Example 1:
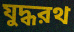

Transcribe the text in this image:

যুদ্ধরথ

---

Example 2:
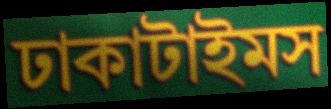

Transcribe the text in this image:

ঢাকাটাইমস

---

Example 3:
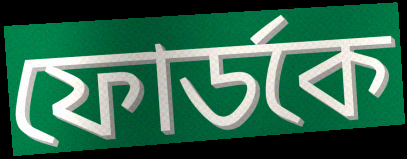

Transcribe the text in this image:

ফোর্ডকে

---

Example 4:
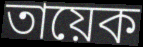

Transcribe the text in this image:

তায়েক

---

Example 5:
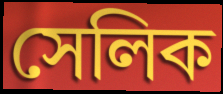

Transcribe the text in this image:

সেলিক